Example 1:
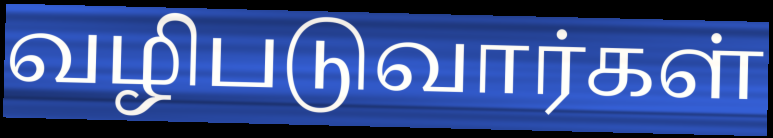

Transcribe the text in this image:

வழிபடுவார்கள்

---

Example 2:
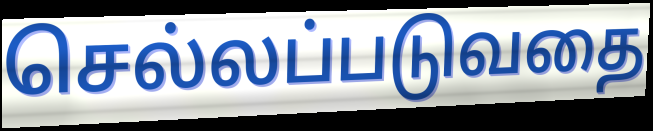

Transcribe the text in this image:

செல்லப்படுவதை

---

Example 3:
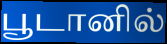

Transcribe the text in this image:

பூடானில்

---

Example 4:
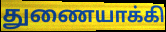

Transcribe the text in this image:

துணையாக்கி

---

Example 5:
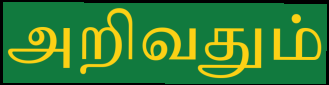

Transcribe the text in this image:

அறிவதும்